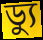
ড্যু